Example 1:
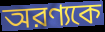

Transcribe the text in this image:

অরণ্যকে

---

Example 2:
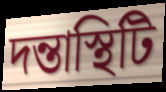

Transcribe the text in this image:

দন্তাস্থিটি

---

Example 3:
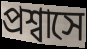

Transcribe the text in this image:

প্রশ্বাসে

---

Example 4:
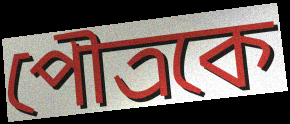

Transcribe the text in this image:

পৌত্রকে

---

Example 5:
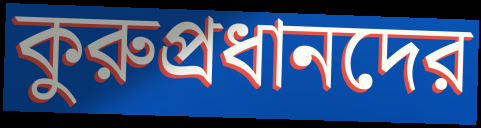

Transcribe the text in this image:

কুরুপ্রধানদের